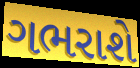
ગભરાશે